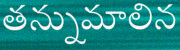
తన్నుమాలిన